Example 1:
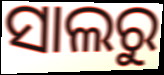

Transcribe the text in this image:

ସାଲରୁ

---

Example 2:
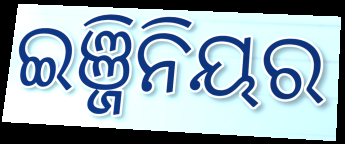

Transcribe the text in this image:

ଇଞ୍ଜିନିୟର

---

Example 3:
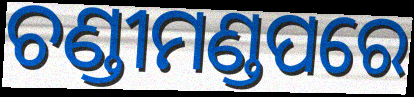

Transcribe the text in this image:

ଚଣ୍ଡୀମଣ୍ଡପରେ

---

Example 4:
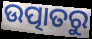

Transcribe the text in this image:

ଉତ୍ପାତରୁ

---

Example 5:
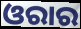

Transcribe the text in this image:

ଓରାର